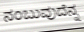
ನಂಬುವುದೆನ್ನ